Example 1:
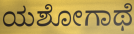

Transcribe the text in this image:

ಯಶೋಗಾಥೆ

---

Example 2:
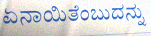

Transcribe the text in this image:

ಏನಾಯಿತೆಂಬುದನ್ನು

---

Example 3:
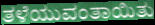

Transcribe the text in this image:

ತಳೆಯುವಂತಾಯಿತು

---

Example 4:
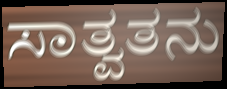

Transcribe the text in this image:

ಸಾತ್ವತನು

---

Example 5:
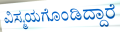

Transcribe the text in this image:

ವಿಸ್ಮಯಗೊಂಡಿದ್ದಾರೆ